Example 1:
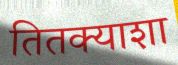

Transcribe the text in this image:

तितक्याशा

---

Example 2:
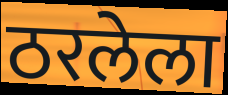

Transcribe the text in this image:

ठरलेला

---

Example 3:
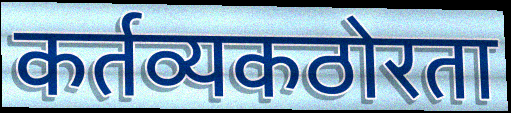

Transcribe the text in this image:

कर्तव्यकठोरता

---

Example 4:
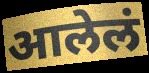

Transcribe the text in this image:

आलेलं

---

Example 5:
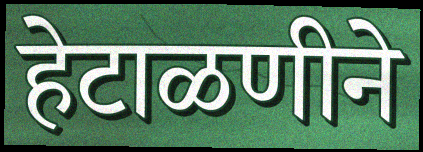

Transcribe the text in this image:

हेटाळणीने